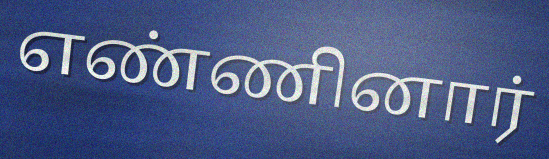
எண்ணினார்